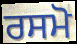
ਰਸਮੋ